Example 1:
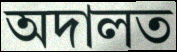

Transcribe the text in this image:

অদালত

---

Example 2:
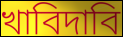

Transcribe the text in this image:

খাবিদাবি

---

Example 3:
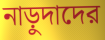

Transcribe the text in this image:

নাড়ুদাদের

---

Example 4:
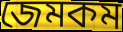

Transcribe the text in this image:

জেমকম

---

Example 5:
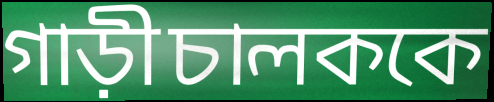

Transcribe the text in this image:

গাড়ীচালককে